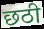
छठी